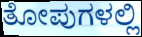
ತೋಪುಗಳಲ್ಲಿ